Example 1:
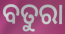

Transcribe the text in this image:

ବତୁରା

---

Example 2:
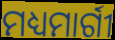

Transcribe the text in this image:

ମଧ୍ୟମାର୍ଗୀ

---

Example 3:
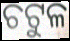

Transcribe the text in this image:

ଚଟୁଳ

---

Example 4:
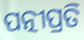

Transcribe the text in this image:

ପତ୍ନୀପ୍ରତି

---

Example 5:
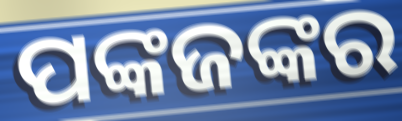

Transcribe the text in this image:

ପଙ୍କଜଙ୍କର